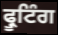
ਫ੍ਰੂਟਿੰਗ